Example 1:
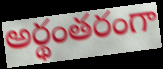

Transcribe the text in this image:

అర్థంతరంగా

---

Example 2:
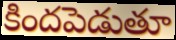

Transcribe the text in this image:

కిందపెడుతూ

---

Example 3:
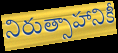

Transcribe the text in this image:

నిరుత్సాహానికీ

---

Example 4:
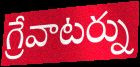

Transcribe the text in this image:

గ్రేవాటర్ను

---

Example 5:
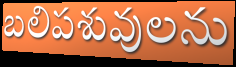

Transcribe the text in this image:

బలిపశువులను